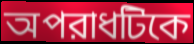
অপরাধটিকে